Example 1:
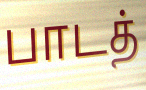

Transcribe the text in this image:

பாடத்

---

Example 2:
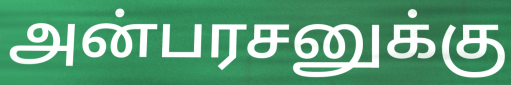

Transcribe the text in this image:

அன்பரசனுக்கு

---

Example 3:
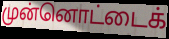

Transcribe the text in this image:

முன்னொட்டைக்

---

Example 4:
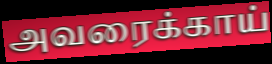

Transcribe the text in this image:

அவரைக்காய்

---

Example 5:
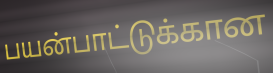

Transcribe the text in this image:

பயன்பாட்டுக்கான